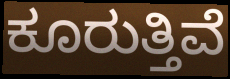
ಕೂರುತ್ತಿವೆ